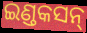
ଇଣ୍ଡକସନ୍